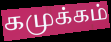
கமுக்கம்